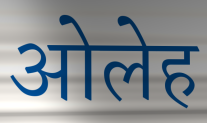
ओलेह